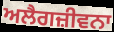
ਅਲੈਗਜ਼ੀਵਨਾ